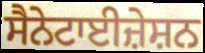
ਸੈਨੇਟਾਈਜ਼ੇਸ਼ਨ